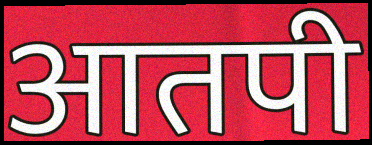
आतपी